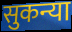
सुकन्या